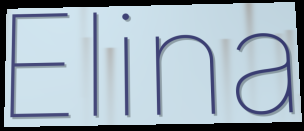
Elina